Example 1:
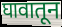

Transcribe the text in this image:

घावातून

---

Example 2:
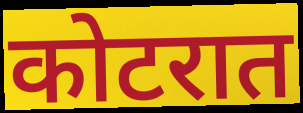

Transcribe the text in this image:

कोटरात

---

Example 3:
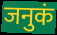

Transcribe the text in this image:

जनुकं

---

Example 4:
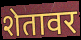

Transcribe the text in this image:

शेतावर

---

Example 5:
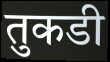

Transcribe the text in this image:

तुकडी